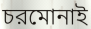
চরমোনাই